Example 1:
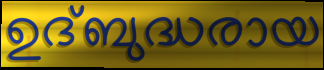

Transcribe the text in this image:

ഉദ്ബുദ്ധരായ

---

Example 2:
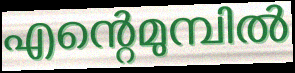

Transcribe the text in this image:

എന്റെമുമ്പിൽ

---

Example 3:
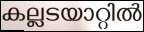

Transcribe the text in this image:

കല്ലടയാറ്റിൽ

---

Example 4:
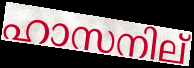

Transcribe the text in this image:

ഹാസനില്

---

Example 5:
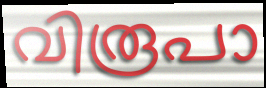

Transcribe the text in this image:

വിരൂപാ